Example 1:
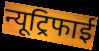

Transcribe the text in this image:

न्यूट्रिफाई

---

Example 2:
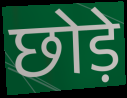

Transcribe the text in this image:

छोड़े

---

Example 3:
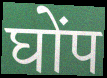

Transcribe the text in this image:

घोंप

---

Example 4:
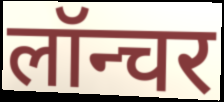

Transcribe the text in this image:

लॉन्चर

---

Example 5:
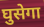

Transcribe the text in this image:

घुसेगा